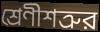
শ্রেণীশত্রুর